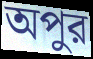
অপুর